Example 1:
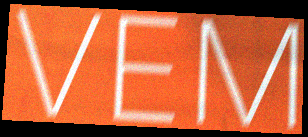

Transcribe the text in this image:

VEM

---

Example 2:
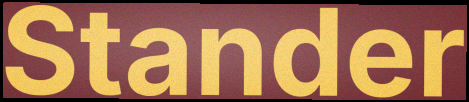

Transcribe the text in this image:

Stander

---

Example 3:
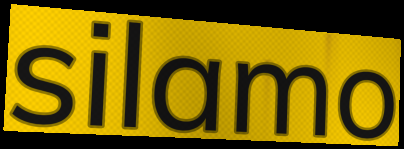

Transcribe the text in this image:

silamo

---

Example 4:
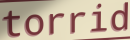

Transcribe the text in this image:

torrid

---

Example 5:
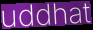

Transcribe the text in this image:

uddhat